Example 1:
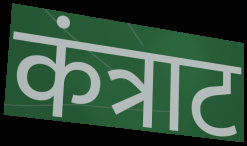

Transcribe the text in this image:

कंत्राट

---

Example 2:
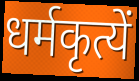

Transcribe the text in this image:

धर्मकृत्यें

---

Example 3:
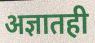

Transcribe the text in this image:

अज्ञातही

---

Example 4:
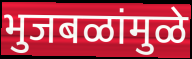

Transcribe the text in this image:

भुजबळांमुळे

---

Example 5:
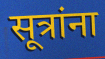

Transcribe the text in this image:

सूत्रांना